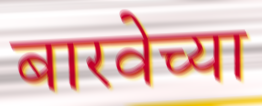
बारवेच्या